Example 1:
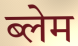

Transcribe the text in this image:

ब्लेम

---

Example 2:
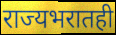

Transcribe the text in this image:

राज्यभरातही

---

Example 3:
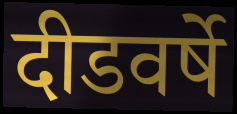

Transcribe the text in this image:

दीडवर्षे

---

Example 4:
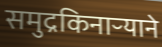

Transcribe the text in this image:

समुद्रकिनाऱ्याने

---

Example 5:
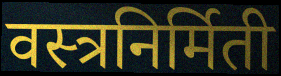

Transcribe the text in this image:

वस्त्रनिर्मिती